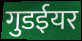
गुडईयर